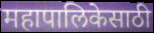
महापालिकेसाठी